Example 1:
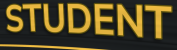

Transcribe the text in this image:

STUDENT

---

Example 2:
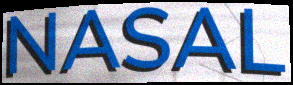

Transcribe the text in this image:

NASAL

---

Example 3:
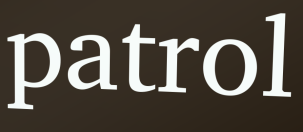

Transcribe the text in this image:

patrol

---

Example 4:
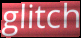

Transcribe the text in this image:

glitch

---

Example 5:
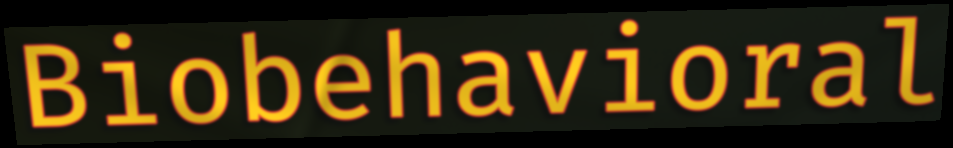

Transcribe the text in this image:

Biobehavioral